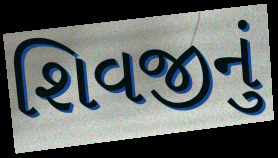
શિવજીનું